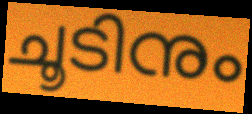
ചൂടിനും